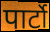
पार्टो